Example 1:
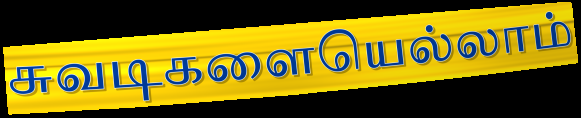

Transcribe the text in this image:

சுவடிகளையெல்லாம்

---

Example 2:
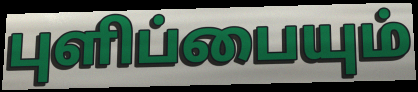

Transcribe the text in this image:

புளிப்பையும்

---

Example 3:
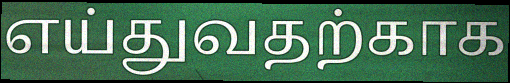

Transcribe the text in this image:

எய்துவதற்காக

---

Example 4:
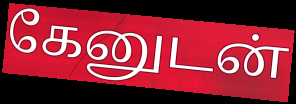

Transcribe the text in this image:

கேனுடன்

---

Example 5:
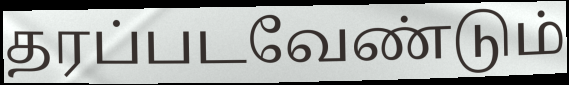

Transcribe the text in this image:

தரப்படவேண்டும்